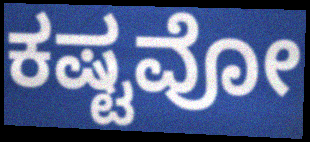
ಕಷ್ಟವೋ